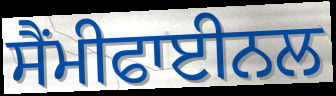
ਸੈਂਮੀਫਾਈਨਲ